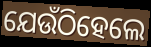
ଯେଉଁଠିହେଲେ